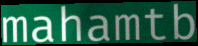
mahamtb